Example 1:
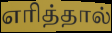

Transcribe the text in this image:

எரித்தால்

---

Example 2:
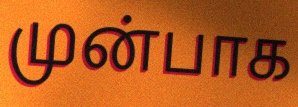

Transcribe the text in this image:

முன்பாக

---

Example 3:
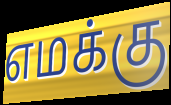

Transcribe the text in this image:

எமக்கு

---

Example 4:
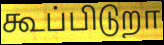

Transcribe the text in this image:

கூப்பிடுறா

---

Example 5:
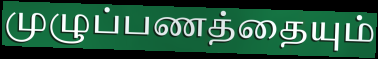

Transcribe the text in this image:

முழுப்பணத்தையும்